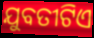
ଯୁବତୀଟିଏ